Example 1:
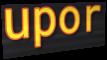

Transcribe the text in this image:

upor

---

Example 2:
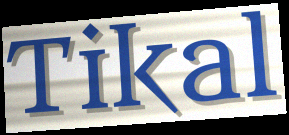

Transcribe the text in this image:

Tikal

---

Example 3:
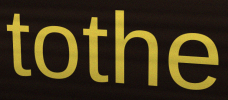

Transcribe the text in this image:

tothe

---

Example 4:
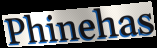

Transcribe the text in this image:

Phinehas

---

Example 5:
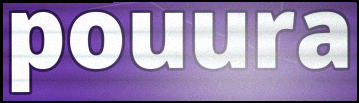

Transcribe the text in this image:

pouura